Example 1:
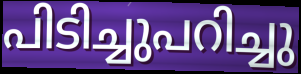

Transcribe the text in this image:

പിടിച്ചുപറിച്ചു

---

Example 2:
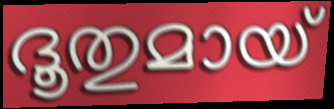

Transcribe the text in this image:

ദൂതുമായ്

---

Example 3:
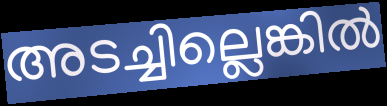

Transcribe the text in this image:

അടച്ചില്ലെങ്കിൽ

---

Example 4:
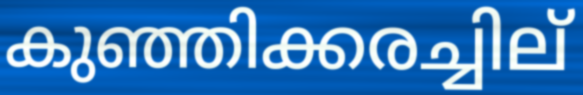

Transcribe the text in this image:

കുഞ്ഞിക്കരച്ചില്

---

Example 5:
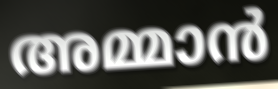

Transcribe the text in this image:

അമ്മാൻ